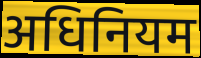
अधिनियम